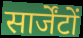
सार्जेंटों